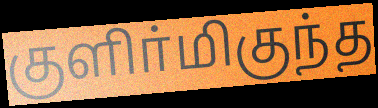
குளிர்மிகுந்த